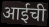
आईची